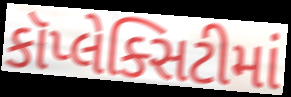
કૉપ્લેક્સિટીમાં